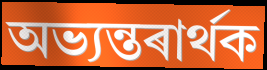
অভ্যন্তৰাৰ্থক